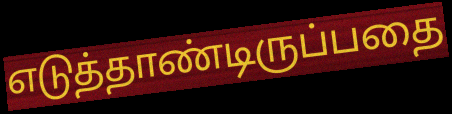
எடுத்தாண்டிருப்பதை